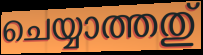
ചെയ്യാത്തതു്